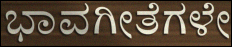
ಭಾವಗೀತೆಗಳೇ